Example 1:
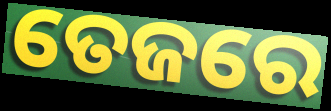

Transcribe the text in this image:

ତେଜରେ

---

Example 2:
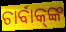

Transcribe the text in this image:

ଚାର୍ବାକ୍‌ଙ୍କ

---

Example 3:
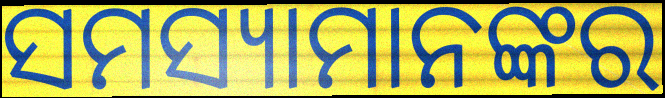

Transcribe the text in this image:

ସମସ୍ଯାମାନଙ୍କର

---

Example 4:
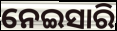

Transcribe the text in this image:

ନେଇସାରି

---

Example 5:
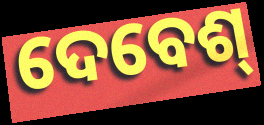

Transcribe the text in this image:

ଦେବେଶ୍